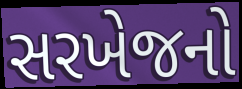
સરખેજનો